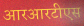
आरआरटीएस